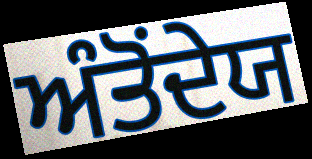
ਅੰਤੋਂਦੇਯ